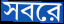
সবরে